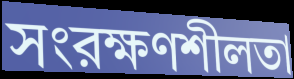
সংরক্ষণশীলতা